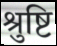
श्रुष्टि